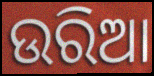
ଉରିଆ